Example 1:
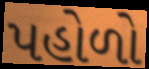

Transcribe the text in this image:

પહોળો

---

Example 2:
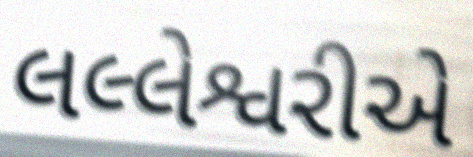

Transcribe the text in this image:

લલ્લેશ્વરીએ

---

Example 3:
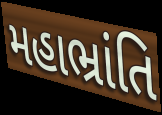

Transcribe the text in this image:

મહાભ્રાંતિ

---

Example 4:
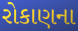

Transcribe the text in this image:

રોકાણના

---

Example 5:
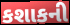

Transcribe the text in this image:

કશાકની